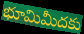
భూమిమీదకు